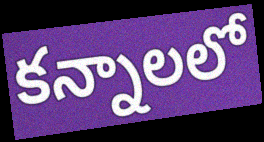
కన్నాలలో